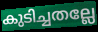
കുടിച്ചതല്ലേ